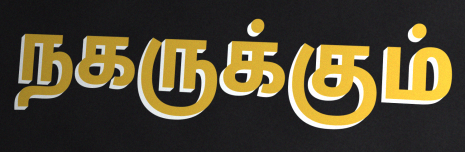
நகருக்கும்